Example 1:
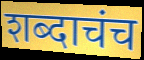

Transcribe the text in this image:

शब्दाचंच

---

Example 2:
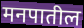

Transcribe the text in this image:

मनपातील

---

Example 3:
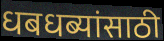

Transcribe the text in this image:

धबधब्यांसाठी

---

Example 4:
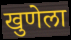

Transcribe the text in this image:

खुणेला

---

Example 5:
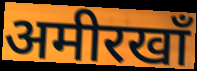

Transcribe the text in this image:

अमीरखाँ